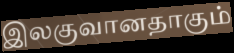
இலகுவானதாகும்